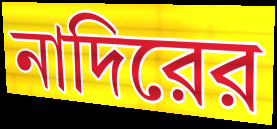
নাদিরের